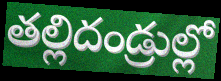
తల్లిదండ్రుల్లో